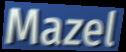
Mazel